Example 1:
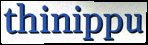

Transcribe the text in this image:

thinippu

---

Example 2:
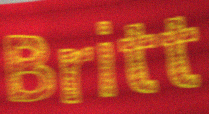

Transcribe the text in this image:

Britt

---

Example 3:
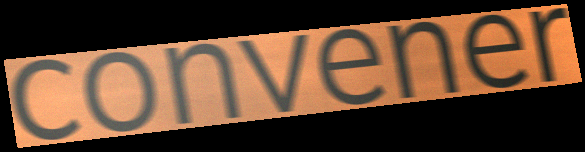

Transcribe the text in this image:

convener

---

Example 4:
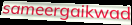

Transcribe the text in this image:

sameergaikwad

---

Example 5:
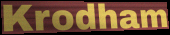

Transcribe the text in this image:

Krodham